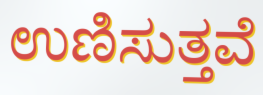
ಉಣಿಸುತ್ತವೆ